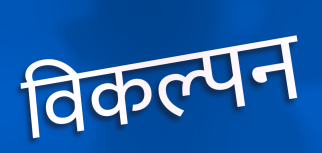
विकल्पन